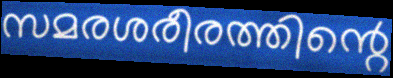
സമരശരീരത്തിന്റെ